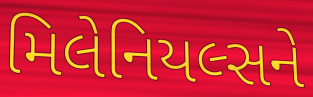
મિલેનિયલ્સને